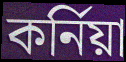
কর্নিয়া